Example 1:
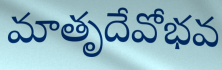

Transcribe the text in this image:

మాతృదేవోభవ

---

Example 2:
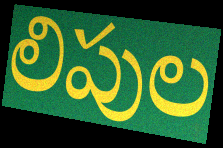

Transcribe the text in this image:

లిపుల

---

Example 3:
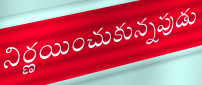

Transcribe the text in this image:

నిర్ణయించుకున్నపుడు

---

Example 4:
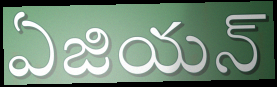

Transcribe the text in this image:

ఏజియన్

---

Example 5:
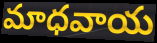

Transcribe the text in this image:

మాధవాయ